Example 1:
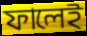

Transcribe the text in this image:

ফালেই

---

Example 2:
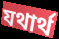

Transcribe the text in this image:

যথাৰ্থ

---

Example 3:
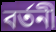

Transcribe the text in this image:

বৰ্তনী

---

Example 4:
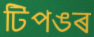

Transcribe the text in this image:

টিপঙৰ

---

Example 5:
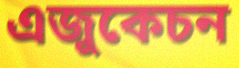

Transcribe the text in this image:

এজুকেচন